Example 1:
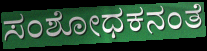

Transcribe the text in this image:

ಸಂಶೋಧಕನಂತೆ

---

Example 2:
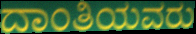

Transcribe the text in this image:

ದಾಂತಿಯವರು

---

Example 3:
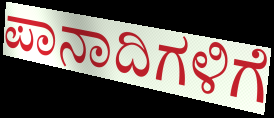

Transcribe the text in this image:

ಪಾನಾದಿಗಳಿಗೆ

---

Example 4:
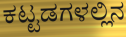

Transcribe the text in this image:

ಕಟ್ಟಡಗಳಲ್ಲಿನ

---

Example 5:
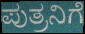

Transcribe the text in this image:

ಪುತ್ರನಿಗೆ